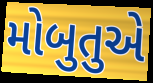
મોબુતુએ